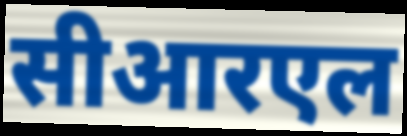
सीआरएल